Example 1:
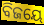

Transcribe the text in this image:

ବିଜୟେ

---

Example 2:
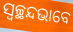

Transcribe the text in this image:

ସ୍ୱଚ୍ଛନ୍ଦଭାବେ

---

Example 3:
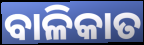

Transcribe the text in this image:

ବାଳିକାତ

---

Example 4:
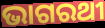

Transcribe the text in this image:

ଭାଗରଥୀ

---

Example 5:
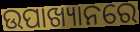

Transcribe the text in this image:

ଉପାଖ୍ୟାନରେ